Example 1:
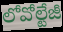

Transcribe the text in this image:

లోవోల్టేజీ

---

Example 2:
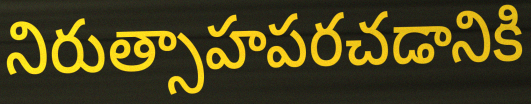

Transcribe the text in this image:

నిరుత్సాహపరచడానికి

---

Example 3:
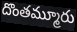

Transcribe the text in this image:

దొంతమ్మూరు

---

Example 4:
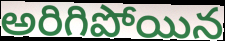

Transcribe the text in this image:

అరిగిపోయిన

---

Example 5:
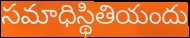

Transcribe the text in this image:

సమాధిస్థితియందు